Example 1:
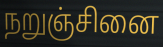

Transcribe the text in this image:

நறுஞ்சினை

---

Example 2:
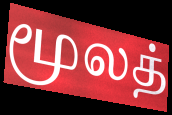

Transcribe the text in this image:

மூலத்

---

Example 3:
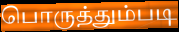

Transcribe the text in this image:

பொருத்தும்படி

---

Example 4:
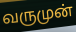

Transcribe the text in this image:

வருமுன்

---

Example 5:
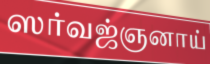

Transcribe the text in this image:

ஸர்வஜ்ஞனாய்